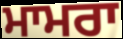
ਮਾਮਰਾ